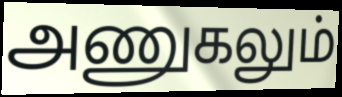
அணுகலும்